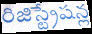
రిజిస్ట్రేషన్ల